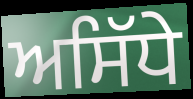
ਅਸਿੱਧੇ